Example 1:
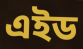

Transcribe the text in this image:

এইড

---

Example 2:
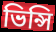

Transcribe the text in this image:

ভিন্সি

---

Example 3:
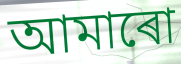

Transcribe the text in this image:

আমাৰো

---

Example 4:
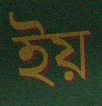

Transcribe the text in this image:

ইয়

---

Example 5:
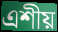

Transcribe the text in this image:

এশীয়